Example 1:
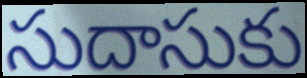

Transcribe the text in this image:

సుదాసుకు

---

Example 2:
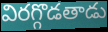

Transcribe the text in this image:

విరగ్గొడతాడు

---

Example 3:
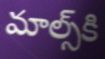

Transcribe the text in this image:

మాల్స్‌కి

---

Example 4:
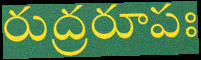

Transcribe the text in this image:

రుద్రరూపః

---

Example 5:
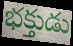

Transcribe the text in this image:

భక్తుడు